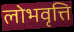
लोभवृत्ति